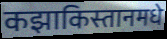
कझाकिस्तानमधे